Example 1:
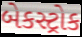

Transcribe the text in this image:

બેકસ્ટ્રોક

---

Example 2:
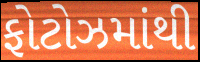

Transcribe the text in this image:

ફોટોઝમાંથી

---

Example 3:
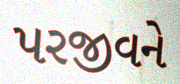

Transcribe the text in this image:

પરજીવને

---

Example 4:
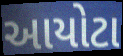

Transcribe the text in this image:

આયોટા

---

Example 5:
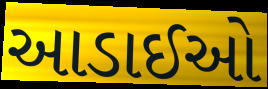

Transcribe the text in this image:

આડાઈઓ